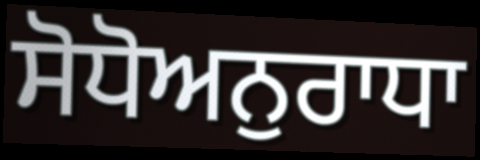
ਸੋਧੋਅਨੁਰਾਧਾ